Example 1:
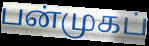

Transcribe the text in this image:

பன்முகப்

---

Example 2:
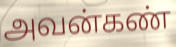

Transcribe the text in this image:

அவன்கண்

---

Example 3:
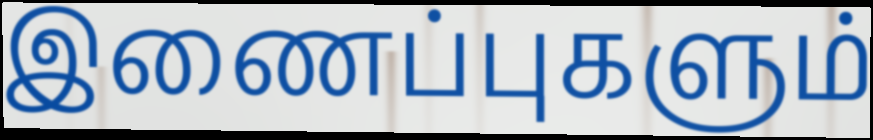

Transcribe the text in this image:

இணைப்புகளும்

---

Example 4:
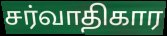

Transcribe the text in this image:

சர்வாதிகார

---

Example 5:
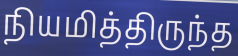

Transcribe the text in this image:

நியமித்திருந்த